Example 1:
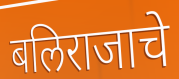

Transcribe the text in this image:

बलिराजाचे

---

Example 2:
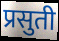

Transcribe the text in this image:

प्रसुती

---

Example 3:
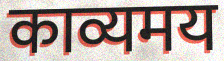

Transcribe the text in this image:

काव्यमय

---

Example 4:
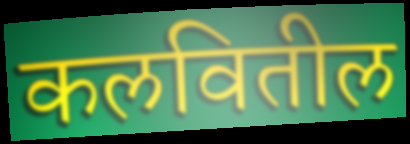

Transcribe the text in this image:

कलवितील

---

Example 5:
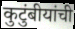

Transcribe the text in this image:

कुटुंबीयांची